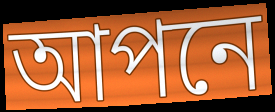
আপনে